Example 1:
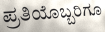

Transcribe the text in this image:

ಪ್ರತಿಯೊಬ್ಬರಿಗೂ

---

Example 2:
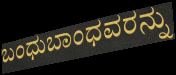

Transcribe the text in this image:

ಬಂಧುಬಾಂಧವರನ್ನು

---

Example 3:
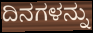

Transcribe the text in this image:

ದಿನಗಳನ್ನು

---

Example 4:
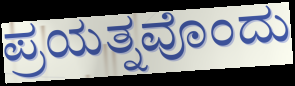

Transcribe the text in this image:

ಪ್ರಯತ್ನವೊಂದು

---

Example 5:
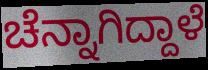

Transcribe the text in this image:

ಚೆನ್ನಾಗಿದ್ದಾಳೆ